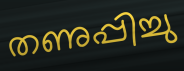
തണുപ്പിച്ചു